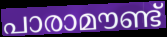
പാരാമൗണ്ട്